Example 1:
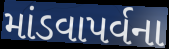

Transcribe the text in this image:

માંડવાપર્વના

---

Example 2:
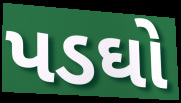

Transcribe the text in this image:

પડઘો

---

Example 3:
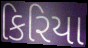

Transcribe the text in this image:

કિરિયા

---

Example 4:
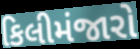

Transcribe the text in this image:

કિલીમંજારો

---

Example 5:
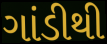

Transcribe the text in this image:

ગાંડીથી